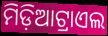
ମିଡ଼ିଆଟ୍ରାଏଲ